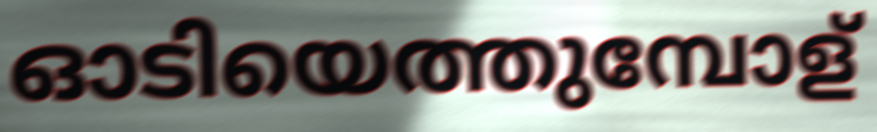
ഓടിയെത്തുമ്പോള്